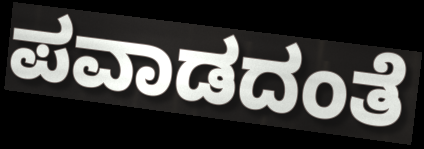
ಪವಾಡದಂತೆ